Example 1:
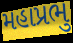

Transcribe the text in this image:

મહાપ્રભુ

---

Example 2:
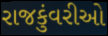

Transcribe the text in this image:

રાજકુંવરીઓ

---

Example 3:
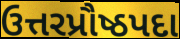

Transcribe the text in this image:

ઉત્તરપ્રૌષ્ઠપદા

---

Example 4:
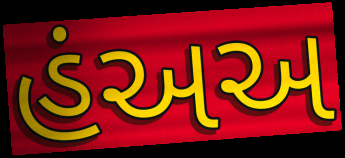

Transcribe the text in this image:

હંઅઅ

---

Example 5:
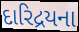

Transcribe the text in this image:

દારિદ્રયના